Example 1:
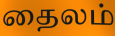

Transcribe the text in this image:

தைலம்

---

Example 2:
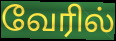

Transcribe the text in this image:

வேரில்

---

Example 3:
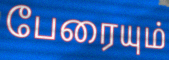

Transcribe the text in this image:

பேரையும்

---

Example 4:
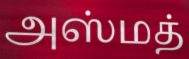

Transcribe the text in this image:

அஸ்மத்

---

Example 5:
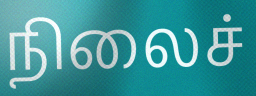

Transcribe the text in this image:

நிலைச்